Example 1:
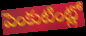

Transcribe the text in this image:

పెంకుటింట్లో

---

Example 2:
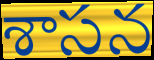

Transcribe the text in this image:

శాసన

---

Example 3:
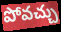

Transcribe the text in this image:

పోవచ్చు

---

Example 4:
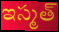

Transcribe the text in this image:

ఇస్మత్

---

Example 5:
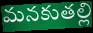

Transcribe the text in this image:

మనకుతల్లి